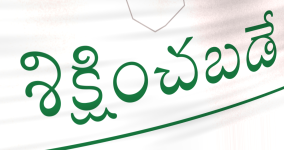
శిక్షించబడే